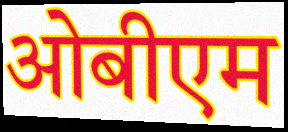
ओबीएम